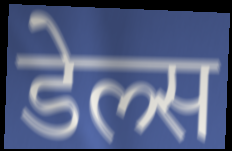
डेल्स